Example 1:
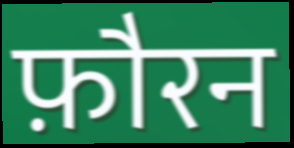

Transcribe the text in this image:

फ़ौरन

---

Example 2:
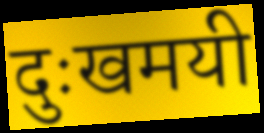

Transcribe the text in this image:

दुःखमयी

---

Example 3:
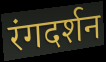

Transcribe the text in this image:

रंगदर्शन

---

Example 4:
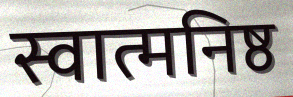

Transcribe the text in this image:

स्वात्मनिष्ठ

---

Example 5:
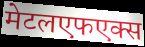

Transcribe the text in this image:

मेटलएफएक्स